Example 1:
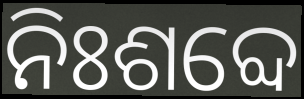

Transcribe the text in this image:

ନିଃଶବ୍ଦେ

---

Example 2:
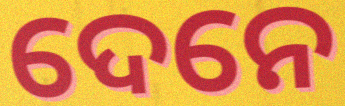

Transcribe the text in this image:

ଦେନେ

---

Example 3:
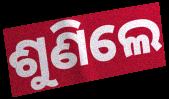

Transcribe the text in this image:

ଶୁଣିଲେ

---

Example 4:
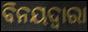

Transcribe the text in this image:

ବିନୟଦ୍ୱାରା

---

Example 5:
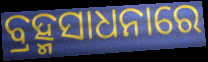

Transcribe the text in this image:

ବ୍ରହ୍ମସାଧନାରେ